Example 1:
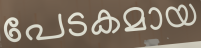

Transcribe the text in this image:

പേടകമായ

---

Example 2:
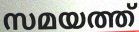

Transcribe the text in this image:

സമയത്ത്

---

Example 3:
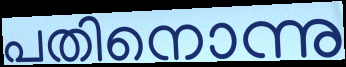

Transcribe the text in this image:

പതിനൊന്നു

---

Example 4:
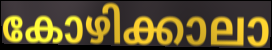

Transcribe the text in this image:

കോഴിക്കാലാ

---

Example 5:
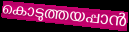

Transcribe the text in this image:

കൊടുത്തയപ്പാൻ